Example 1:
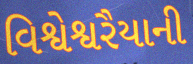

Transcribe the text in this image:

વિશ્વેશ્વરૈયાની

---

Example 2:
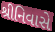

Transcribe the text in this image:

શ્રીનિવાસે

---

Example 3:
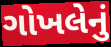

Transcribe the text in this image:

ગોખલેનું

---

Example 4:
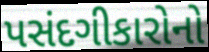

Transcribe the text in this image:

પસંદગીકારોનો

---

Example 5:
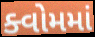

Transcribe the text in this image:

ક્વોમમાં